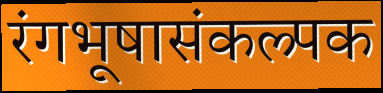
रंगभूषासंकल्पक